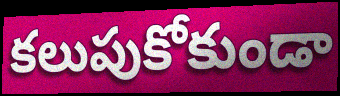
కలుపుకోకుండా